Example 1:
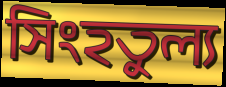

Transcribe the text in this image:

সিংহতুল্য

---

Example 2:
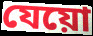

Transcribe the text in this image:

যেয়ো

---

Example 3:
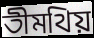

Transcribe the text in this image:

তীমথিয়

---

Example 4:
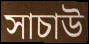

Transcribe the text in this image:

সাচাউ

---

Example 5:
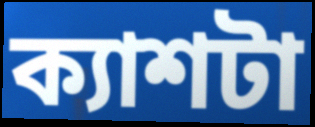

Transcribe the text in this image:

ক্যাশটা